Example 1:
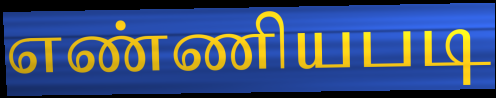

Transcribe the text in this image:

எண்ணியபடி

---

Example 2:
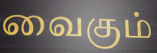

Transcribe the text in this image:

வைகும்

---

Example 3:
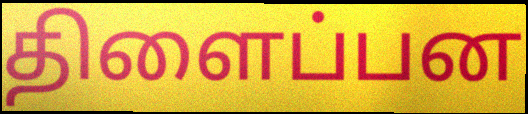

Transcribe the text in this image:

திளைப்பன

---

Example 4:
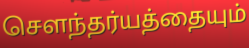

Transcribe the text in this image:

சௌந்தர்யத்தையும்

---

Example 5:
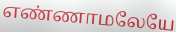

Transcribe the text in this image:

எண்ணாமலேயே